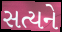
સત્યને